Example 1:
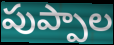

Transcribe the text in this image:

పుప్పాల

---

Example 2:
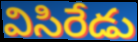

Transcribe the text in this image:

విసిరేడు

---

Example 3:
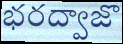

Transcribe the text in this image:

భరద్వాజొ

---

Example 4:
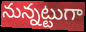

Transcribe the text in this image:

నున్నట్టుగా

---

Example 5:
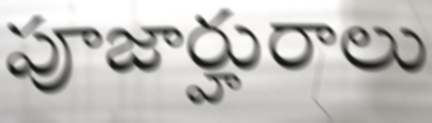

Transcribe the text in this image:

పూజార్హురాలు